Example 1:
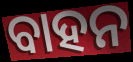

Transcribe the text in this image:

ବାହନ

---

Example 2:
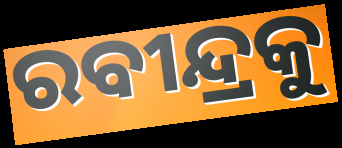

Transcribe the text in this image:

ରବୀନ୍ଦ୍ରକୁ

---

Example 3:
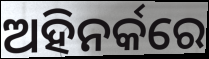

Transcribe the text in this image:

ଅହିନର୍କରେ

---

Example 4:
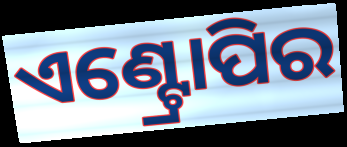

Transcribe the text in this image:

ଏଣ୍ଟ୍ରୋପିର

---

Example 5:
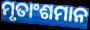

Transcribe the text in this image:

ମୃତାଂଶମାନ